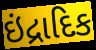
ઇંદ્રાદિક